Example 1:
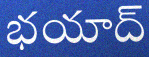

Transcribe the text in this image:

భయాద్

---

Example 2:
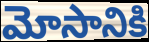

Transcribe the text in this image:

మోసానికి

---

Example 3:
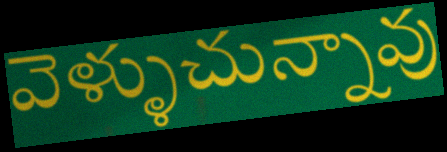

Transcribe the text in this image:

వెళ్ళుచున్నావు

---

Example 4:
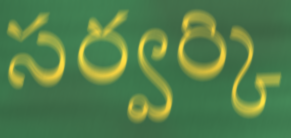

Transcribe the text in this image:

సర్వర్కి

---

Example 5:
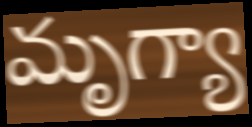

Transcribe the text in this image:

మృగ్యా